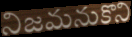
నిజమనుకొని